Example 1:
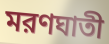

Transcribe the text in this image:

মরণঘাতী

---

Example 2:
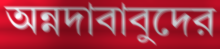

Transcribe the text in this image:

অন্নদাবাবুদের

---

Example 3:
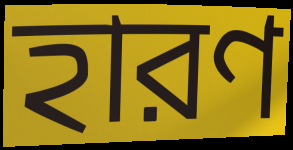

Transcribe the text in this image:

হারণ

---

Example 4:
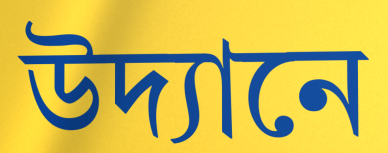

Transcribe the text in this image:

উদ্যানে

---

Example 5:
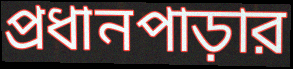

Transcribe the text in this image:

প্রধানপাড়ার